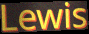
Lewis